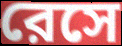
রেসে